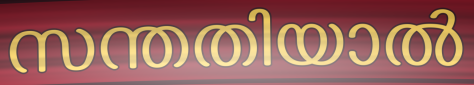
സന്തതിയാൽ